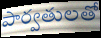
పార్వతులతో